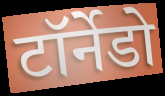
टॉर्नेडो